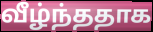
வீழ்ந்ததாக